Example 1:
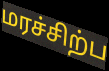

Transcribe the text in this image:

மரச்சிற்ப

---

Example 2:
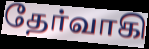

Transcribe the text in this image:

தேர்வாகி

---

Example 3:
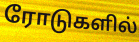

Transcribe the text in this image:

ரோடுகளில்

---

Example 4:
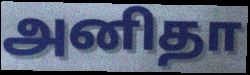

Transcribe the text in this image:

அனிதா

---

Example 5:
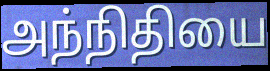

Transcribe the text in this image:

அந்நிதியை